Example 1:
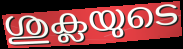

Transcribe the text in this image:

ശുക്ലയുടെ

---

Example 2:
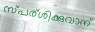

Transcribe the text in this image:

സ്പര്ശിക്കുവാന്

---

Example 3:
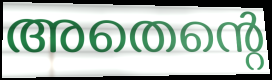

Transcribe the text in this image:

അതെന്റെ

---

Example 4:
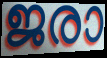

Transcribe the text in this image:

ജരാ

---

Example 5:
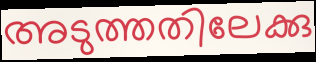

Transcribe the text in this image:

അടുത്തതിലേക്കു